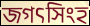
জগৎসিংহ